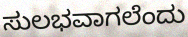
ಸುಲಭವಾಗಲೆಂದು